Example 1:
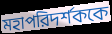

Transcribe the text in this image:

মহাপরিদর্শককে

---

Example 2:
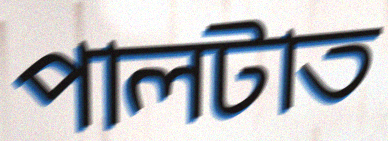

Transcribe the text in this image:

পালটাত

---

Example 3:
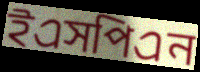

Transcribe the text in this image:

ইএসপিএন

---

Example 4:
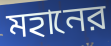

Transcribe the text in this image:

মহানের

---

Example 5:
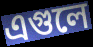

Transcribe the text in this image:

এগুলে